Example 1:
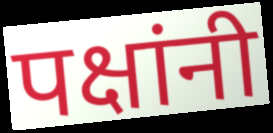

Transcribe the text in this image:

पक्षांनी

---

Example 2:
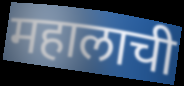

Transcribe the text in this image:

महालाची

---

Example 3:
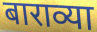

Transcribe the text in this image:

बाराव्या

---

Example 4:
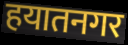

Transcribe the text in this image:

हयातनगर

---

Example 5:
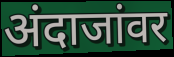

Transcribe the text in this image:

अंदाजांवर